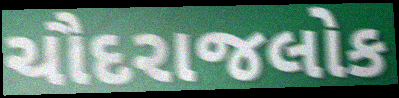
ચૌદરાજલોક